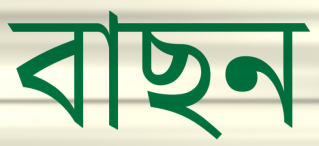
বাছন